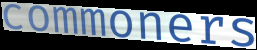
commoners